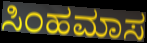
ಸಿಂಹಮಾಸ